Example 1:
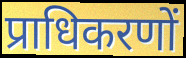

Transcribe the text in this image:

प्राधिकरणों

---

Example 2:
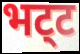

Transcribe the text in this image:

भट्‌ट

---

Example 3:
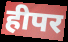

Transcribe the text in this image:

हीपर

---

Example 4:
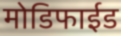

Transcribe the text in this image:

मोडिफाईड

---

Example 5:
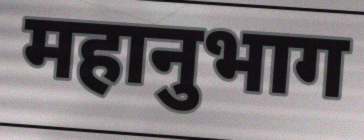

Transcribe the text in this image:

महानुभाग